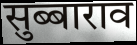
सुब्‍बाराव